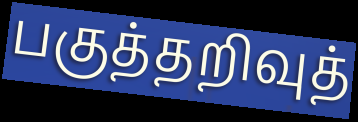
பகுத்தறிவுத்